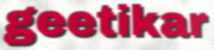
geetikar